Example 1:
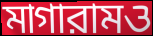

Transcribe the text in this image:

মাগারামও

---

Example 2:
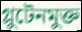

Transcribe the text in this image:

গ্লুটেনমুক্ত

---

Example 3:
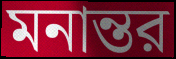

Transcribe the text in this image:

মনান্তর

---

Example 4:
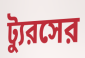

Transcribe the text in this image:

ট্যুরসের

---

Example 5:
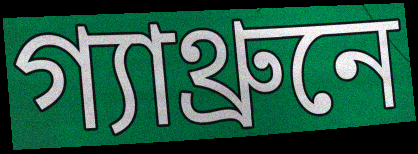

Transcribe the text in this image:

গ্যাথ্রুনে